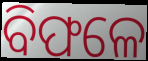
ବିଫଳେ